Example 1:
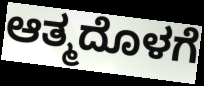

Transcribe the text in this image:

ಆತ್ಮದೊಳಗೆ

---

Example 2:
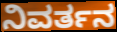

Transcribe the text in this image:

ನಿವರ್ತನ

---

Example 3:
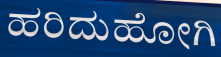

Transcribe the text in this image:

ಹರಿದುಹೋಗಿ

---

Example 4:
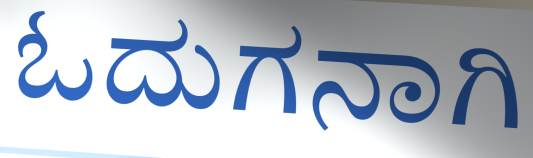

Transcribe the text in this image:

ಓದುಗನಾಗಿ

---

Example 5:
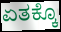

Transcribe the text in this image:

ಏತಕ್ಕೊ